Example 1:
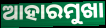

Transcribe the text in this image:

ଆହାରମୁଖା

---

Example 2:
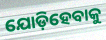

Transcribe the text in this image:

ଯୋଡ଼ିହେବାକୁ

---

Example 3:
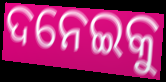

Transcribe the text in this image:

ଦନେଇକୁ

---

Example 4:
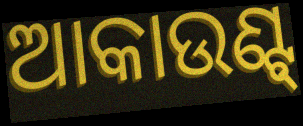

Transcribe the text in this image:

ଆକାଉଣ୍ଟ୍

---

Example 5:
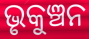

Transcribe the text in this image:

ଭୃକୁଞ୍ଚନ